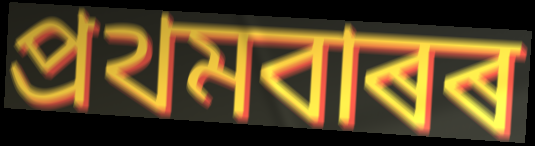
প্ৰথমবাৰৰ